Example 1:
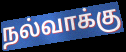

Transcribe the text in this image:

நல்வாக்கு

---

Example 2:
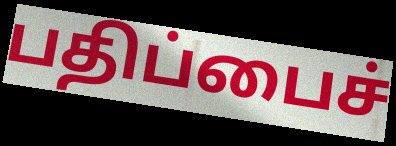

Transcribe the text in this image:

பதிப்பைச்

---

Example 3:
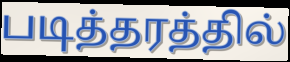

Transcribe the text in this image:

படித்தரத்தில்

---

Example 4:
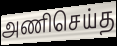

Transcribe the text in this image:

அணிசெய்த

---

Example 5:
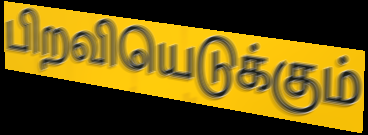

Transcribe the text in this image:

பிறவியெடுக்கும்